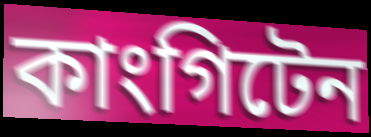
কাংগিটেন